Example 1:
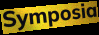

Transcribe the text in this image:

Symposia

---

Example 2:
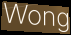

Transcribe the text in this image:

Wong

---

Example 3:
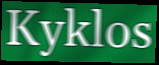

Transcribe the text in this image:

Kyklos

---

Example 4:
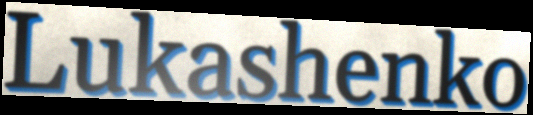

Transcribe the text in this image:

Lukashenko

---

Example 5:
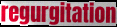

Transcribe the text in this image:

regurgitation